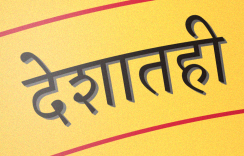
देशातही